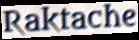
Raktache